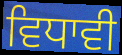
ਵਿਧਾਵੀ